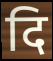
दि